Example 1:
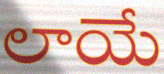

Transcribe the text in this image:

లాయే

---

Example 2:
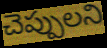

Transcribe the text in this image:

చెప్పులని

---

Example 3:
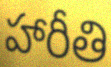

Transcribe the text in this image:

హారీతి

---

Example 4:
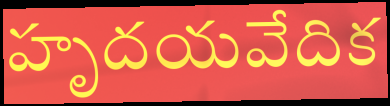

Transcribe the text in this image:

హృదయవేదిక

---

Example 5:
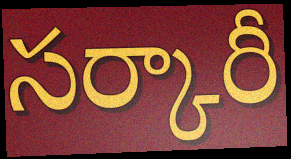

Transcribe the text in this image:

సర్కారీ